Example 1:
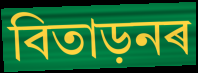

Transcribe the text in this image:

বিতাড়নৰ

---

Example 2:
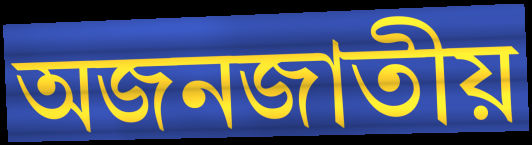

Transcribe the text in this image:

অজনজাতীয়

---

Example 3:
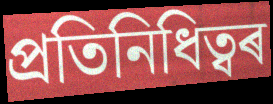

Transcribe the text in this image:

প্ৰতিনিধিত্বৰ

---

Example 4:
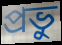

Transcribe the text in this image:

প্ৰভু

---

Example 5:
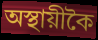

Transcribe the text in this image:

অস্থায়ীকৈ